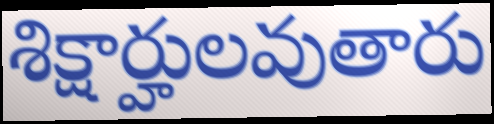
శిక్షార్హులవుతారు